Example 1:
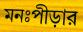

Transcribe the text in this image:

মনঃপীড়ার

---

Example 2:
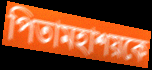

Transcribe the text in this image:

পিতামহাশয়কে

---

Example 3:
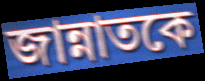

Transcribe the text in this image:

জান্নাতকে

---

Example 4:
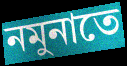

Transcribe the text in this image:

নমুনাতে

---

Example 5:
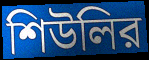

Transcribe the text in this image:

শিউলির